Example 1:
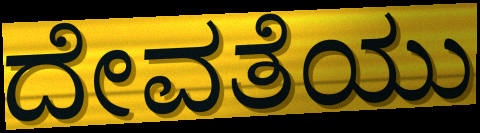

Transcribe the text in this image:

ದೇವತೆಯು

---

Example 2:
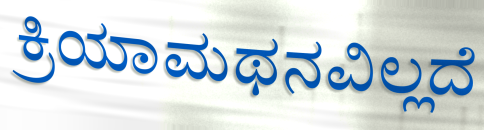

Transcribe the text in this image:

ಕ್ರಿಯಾಮಥನವಿಲ್ಲದೆ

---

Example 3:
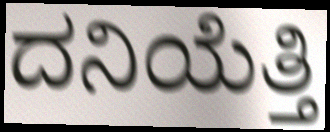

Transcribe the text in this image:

ದನಿಯೆತ್ತಿ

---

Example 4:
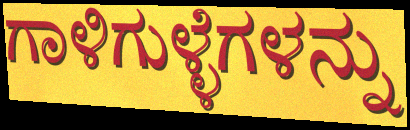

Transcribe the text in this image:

ಗಾಳಿಗುಳ್ಳೆಗಳನ್ನು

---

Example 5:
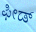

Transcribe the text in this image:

ಫೀಡ್